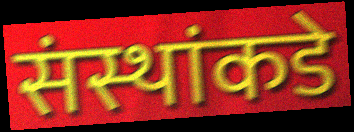
संस्थांकडे